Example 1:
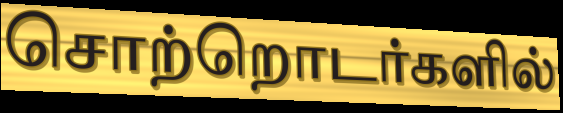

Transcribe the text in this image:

சொற்றொடர்களில்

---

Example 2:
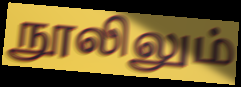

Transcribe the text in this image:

நூலிலும்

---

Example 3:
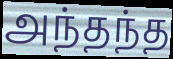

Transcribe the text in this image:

அந்தந்த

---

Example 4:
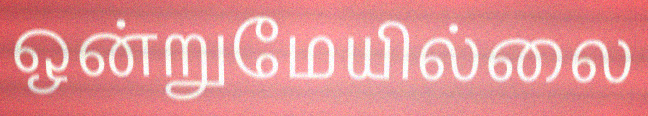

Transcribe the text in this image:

ஒன்றுமேயில்லை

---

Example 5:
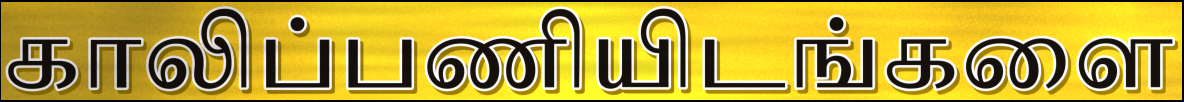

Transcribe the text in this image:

காலிப்பணியிடங்களை